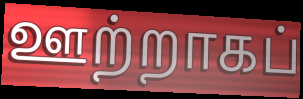
ஊற்றாகப்